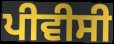
ਪੀਵੀਸੀ